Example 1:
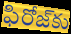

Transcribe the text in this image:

ఫిరోజ్‌కు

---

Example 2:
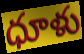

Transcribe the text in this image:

ధూళు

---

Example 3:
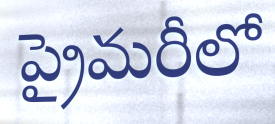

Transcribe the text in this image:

ప్రైమరీలో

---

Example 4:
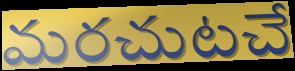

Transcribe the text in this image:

మరచుటచే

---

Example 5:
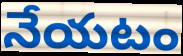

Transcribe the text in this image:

నేయటం